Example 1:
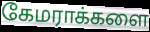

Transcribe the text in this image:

கேமராக்களை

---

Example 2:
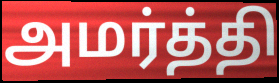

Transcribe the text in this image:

அமர்த்தி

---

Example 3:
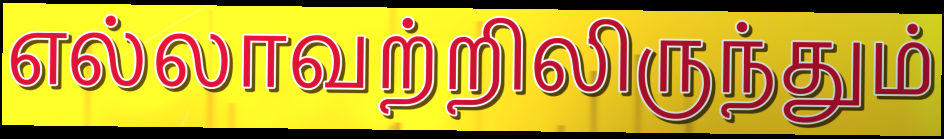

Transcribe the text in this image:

எல்லாவற்றிலிருந்தும்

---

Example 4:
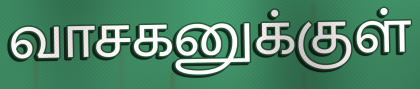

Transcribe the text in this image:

வாசகனுக்குள்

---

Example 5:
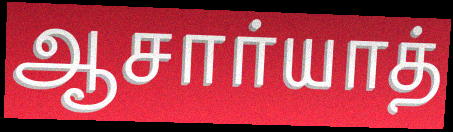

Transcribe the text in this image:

ஆசார்யாத்